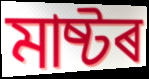
মাষ্টৰ